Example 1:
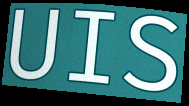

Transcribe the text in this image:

UIS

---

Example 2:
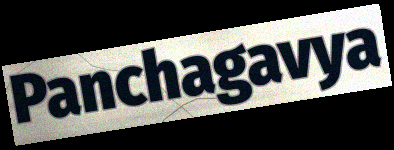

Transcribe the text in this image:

Panchagavya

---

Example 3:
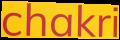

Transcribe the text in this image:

chakri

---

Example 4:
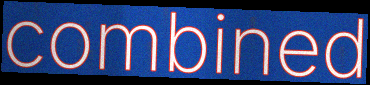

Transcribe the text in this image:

combined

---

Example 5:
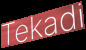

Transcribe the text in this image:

Tekadi